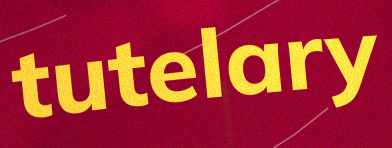
tutelary